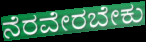
ನೆರವೇರಬೇಕು